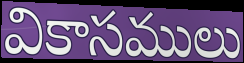
వికాసములు